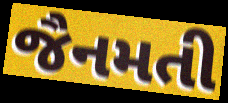
જૈનમતી